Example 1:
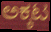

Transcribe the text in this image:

ಅಕ್ಕಟ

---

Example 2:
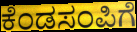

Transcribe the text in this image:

ಕೆಂಡಸಂಪಿಗೆ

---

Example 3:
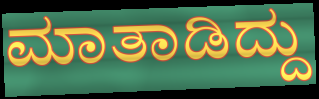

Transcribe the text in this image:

ಮಾತಾಡಿದ್ದು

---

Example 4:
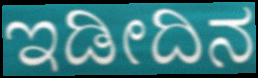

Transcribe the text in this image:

ಇಡೀದಿನ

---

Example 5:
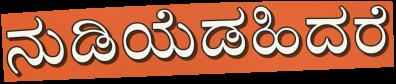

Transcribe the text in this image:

ನುಡಿಯೆಡಹಿದರೆ